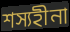
শস্যহীনা